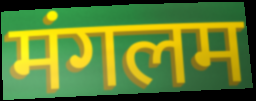
मंगलम